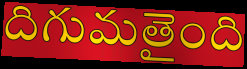
దిగుమతైంది